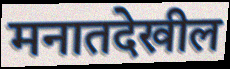
मनातदेखील